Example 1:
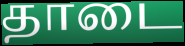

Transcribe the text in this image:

தாடை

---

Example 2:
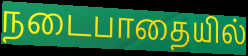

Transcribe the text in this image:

நடைபாதையில்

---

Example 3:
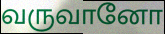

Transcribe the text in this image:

வருவானோ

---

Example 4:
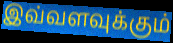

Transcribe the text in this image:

இவ்வளவுக்கும்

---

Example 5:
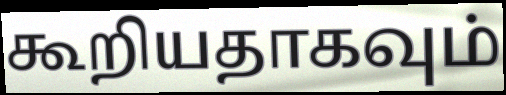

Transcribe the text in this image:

கூறியதாகவும்